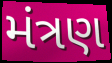
મંત્રણ